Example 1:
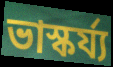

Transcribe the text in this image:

ভাস্কৰ্য্য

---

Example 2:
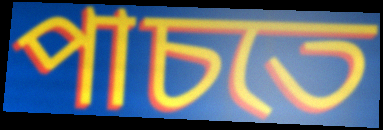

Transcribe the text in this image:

পাচতে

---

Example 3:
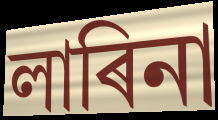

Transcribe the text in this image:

লাৰিনা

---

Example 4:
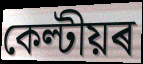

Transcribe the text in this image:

কেল্টীয়ৰ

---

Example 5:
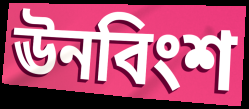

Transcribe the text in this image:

ঊনবিংশ